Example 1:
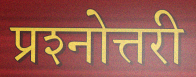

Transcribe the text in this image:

प्रश्नोत्तरी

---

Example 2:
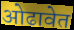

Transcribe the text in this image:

ओढावेत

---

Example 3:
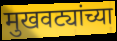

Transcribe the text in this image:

मुखवट्यांच्या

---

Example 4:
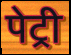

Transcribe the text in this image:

पेट्री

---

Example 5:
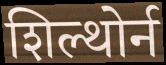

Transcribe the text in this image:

शिल्थोर्न